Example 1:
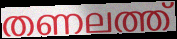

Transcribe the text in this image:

തണലത്ത്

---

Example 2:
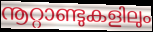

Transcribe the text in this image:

നൂറ്റാണ്ടുകളിലും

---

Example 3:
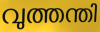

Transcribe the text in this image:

വുത്തന്തി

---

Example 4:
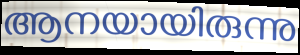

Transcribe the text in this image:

ആനയായിരുന്നു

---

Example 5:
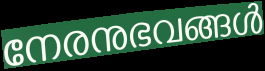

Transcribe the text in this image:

നേരനുഭവങ്ങൾ